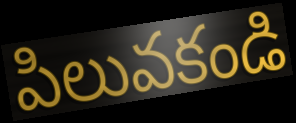
పిలువకండి